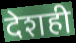
देशही